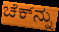
ಚೆಕ್‌ನ್ನು